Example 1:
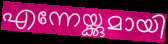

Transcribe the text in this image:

എന്നേയ്ക്കുമായി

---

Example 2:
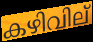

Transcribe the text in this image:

കഴിവില്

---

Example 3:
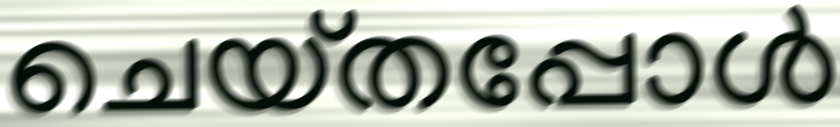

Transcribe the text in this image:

ചെയ്‌തപ്പോൾ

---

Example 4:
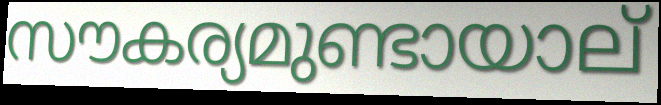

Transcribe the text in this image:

സൗകര്യമുണ്ടായാല്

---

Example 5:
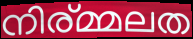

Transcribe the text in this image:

നിര്മ്മലത